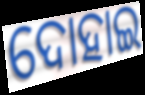
ଦୋହାଇ